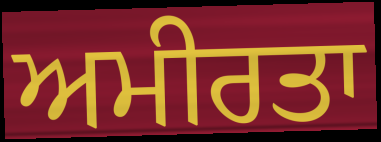
ਅਮੀਰਤਾ